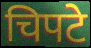
चिपटे